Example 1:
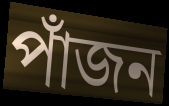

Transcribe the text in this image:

পাঁজন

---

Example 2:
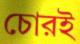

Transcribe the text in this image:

চোরই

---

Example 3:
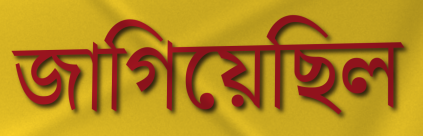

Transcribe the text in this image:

জাগিয়েছিল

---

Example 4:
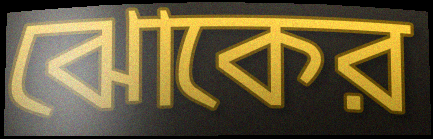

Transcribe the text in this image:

ঝোকের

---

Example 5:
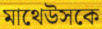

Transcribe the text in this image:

মাথেউসকে